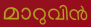
മാറുവിൻ